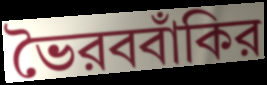
ভৈরববাঁকির